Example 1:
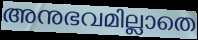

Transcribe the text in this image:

അനുഭവമില്ലാതെ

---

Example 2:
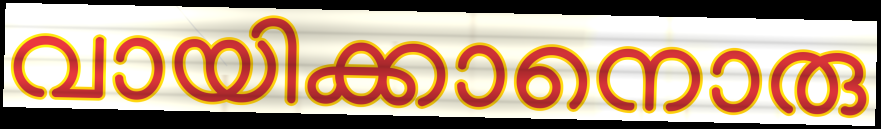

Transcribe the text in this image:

വായിക്കാനൊരു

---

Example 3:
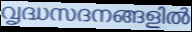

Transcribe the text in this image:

വൃദ്ധസദനങ്ങളിൽ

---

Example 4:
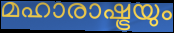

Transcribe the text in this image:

മഹാരാഷ്ട്രയും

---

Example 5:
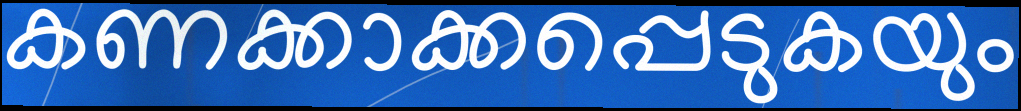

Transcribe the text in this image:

കണക്കാക്കപ്പെടുകയും